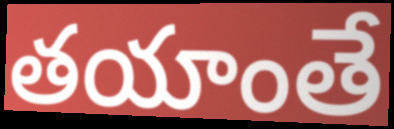
తయాంతే